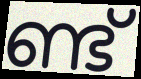
ണ്ട്